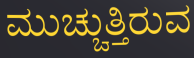
ಮುಚ್ಚುತ್ತಿರುವ